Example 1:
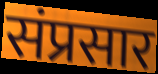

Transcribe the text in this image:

संप्रसार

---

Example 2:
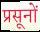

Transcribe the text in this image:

प्रसूनों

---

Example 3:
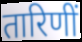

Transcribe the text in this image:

तारिणीं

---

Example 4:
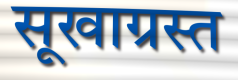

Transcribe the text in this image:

सूखाग्रस्‍त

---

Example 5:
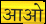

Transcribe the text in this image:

आओ